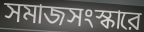
সমাজসংস্কারে